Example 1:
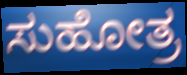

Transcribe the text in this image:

ಸುಹೋತ್ರ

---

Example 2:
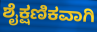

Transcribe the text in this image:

ಶೈಕ್ಷಣಿಕವಾಗಿ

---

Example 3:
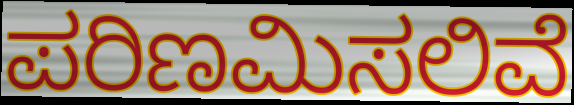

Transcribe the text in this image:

ಪರಿಣಮಿಸಲಿವೆ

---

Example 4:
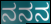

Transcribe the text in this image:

ನನನ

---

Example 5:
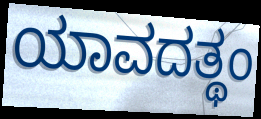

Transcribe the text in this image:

ಯಾವದತ್ಥಂ